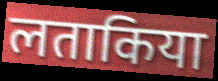
लताकिया